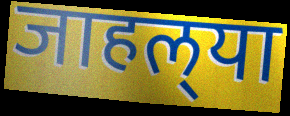
जाहल्या